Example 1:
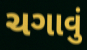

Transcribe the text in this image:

ચગાવું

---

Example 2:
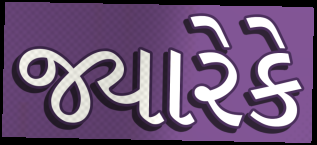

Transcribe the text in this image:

જ્યારેકે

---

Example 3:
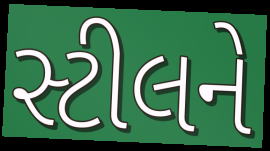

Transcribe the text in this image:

સ્ટીલને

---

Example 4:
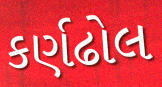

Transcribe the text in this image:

કર્ણઢોલ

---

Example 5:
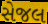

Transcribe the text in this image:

સેજલ